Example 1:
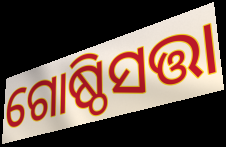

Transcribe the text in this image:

ଗୋଷ୍ଠିସତ୍ତା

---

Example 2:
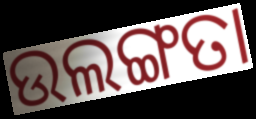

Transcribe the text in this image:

ଉଲଙ୍ଗତା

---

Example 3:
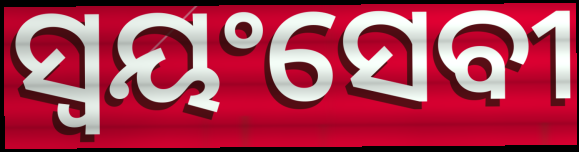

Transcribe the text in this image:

ସ୍ୱୟଂସେବୀ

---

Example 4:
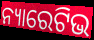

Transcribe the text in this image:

ନ୍ୟାରେଟିଭ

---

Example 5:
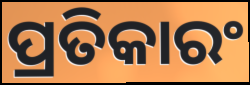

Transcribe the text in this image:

ପ୍ରତିକାରଂ